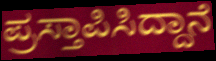
ಪ್ರಸ್ತಾಪಿಸಿದ್ದಾನೆ